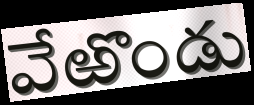
వేఱొండు